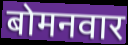
बोमनवार